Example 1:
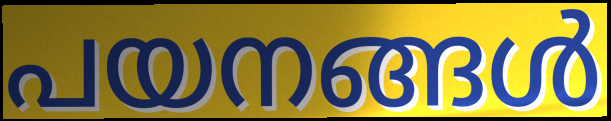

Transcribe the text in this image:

പയനങ്ങൾ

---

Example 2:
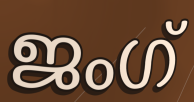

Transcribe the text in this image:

ജംഗ്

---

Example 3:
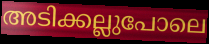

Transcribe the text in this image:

അടിക്കല്ലുപോലെ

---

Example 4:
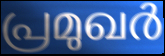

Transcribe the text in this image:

പ്രമുഖർ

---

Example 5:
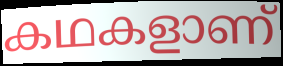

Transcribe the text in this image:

കഥകളാണ്